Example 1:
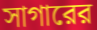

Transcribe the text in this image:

সাগারের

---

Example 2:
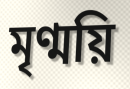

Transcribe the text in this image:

মৃণ্ময়ি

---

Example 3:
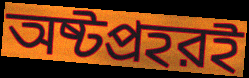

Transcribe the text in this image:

অষ্টপ্রহরই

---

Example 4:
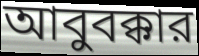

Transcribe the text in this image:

আবুবক্কার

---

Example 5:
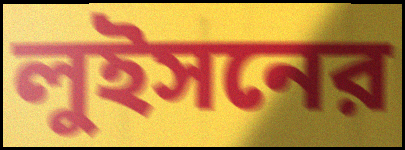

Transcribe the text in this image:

লুইসনের